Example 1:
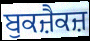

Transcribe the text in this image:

ਬੁਕਜ਼ੈਕਜ਼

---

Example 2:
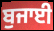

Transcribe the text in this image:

ਬੁਜਾਈ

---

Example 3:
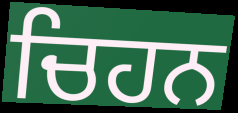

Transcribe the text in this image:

ਚਿਹਨ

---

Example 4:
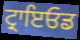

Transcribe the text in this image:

ਟ੍ਰਾਇਓਡ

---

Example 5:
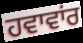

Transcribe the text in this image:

ਹਵਾਵਾਂਰ